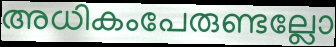
അധികംപേരുണ്ടല്ലോ